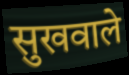
सुखवाले